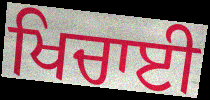
ਖਿਚਾਈ